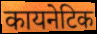
कायनेटिक